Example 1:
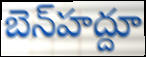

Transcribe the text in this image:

బెన్‍హద్దూ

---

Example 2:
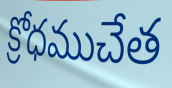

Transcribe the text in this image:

క్రోధముచేత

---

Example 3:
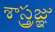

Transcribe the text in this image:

శాస్త్రజ్ఞు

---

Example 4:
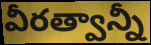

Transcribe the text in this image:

వీరత్వాన్నీ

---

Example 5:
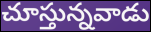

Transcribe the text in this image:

చూస్తున్నవాడు